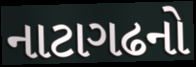
નાટાગઢનો